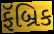
ફૅબ્રિક